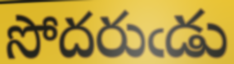
సోదరుఁడు